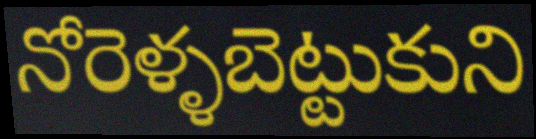
నోరెళ్ళబెట్టుకుని